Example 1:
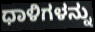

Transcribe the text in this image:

ಧಾಳಿಗಳನ್ನು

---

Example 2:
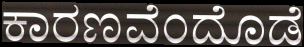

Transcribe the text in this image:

ಕಾರಣವೆಂದೊಡೆ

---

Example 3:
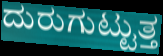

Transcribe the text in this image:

ದುರುಗುಟ್ಟುತ್ತ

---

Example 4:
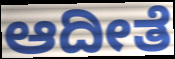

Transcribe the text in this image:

ಆದೀತೆ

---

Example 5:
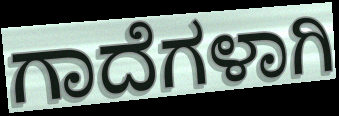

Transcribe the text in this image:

ಗಾದೆಗಳಾಗಿ